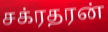
சக்ரதரன்